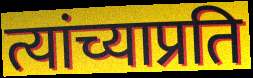
त्यांच्याप्रति